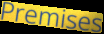
Premises